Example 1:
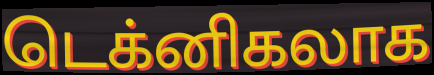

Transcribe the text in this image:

டெக்னிகலாக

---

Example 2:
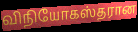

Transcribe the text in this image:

விநியோகஸ்தரான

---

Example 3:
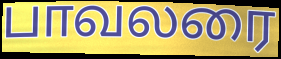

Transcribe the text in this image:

பாவலரை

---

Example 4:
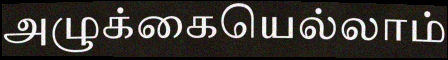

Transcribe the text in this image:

அழுக்கையெல்லாம்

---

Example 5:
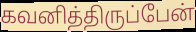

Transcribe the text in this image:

கவனித்திருப்பேன்